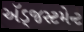
ઍડ્જસ્ટમેન્ટ